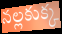
నల్లకుక్క